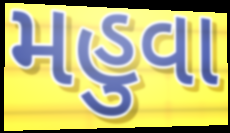
મહુવા